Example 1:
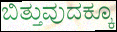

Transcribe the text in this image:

ಬಿತ್ತುವುದಕ್ಕೂ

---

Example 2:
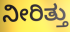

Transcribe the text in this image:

ನೀರಿತ್ತು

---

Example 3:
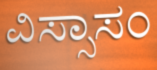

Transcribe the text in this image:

ವಿಸ್ಸಾಸಂ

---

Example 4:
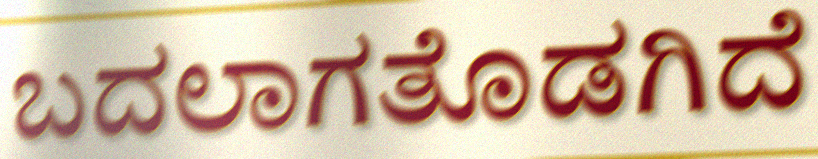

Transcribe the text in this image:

ಬದಲಾಗತೊಡಗಿದೆ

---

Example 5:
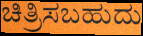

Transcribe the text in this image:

ಚಿತ್ರಿಸಬಹುದು